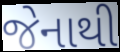
જેનાથી